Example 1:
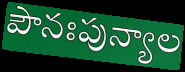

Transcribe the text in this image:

పౌనఃపున్యాల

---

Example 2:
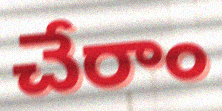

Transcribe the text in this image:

చేరాం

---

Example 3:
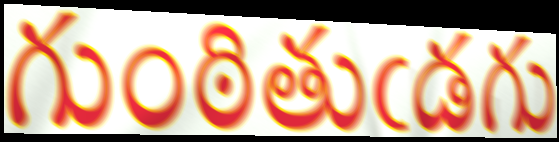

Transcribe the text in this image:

గుంఠితుఁడగు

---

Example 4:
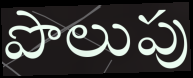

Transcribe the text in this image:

పొలుపు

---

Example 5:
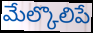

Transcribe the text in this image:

మేల్కొలిపే